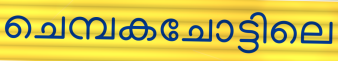
ചെമ്പകചോട്ടിലെ